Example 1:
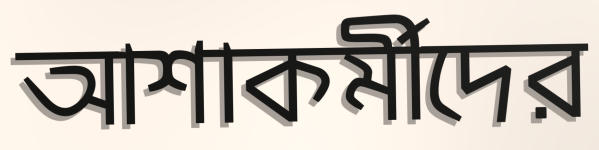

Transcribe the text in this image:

আশাকর্মীদের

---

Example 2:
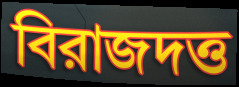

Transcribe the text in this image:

বিরাজদত্ত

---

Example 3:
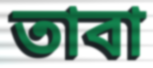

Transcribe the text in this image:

তাবা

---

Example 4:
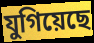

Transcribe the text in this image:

যুগিয়েছে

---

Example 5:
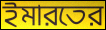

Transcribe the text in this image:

ইমারতের